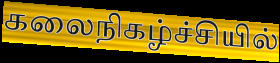
கலைநிகழ்ச்சியில்